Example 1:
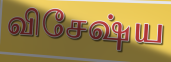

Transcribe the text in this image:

விசேஷ்ய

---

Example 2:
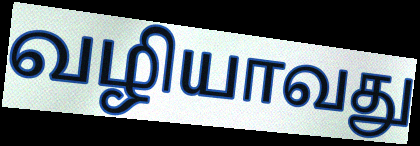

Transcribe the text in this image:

வழியாவது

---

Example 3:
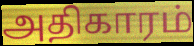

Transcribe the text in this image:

அதிகாரம்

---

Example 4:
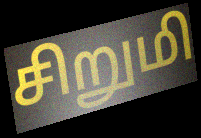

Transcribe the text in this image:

சிறுமி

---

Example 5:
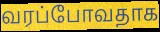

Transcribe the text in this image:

வரப்போவதாக